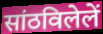
सांठविलेलें